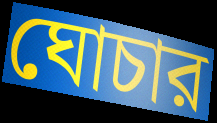
ঘোচার